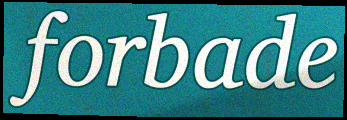
forbade